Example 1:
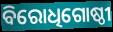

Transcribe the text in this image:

ବିରୋଧିଗୋଷ୍ଠୀ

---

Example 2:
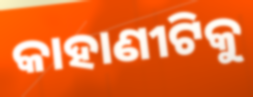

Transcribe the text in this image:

କାହାଣୀଟିକୁ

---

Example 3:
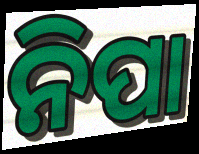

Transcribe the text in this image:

ନିପା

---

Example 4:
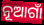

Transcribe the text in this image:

ନୂଆଗାଁ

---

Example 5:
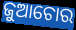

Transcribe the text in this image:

ଜୁଆଚୋର